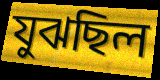
যুঝছিল